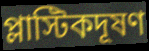
প্লাস্টিকদূষণ